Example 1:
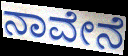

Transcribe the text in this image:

ನಾವೇನೆ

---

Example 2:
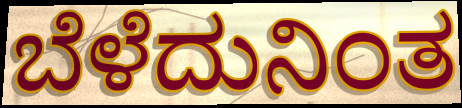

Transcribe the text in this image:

ಬೆಳೆದುನಿಂತ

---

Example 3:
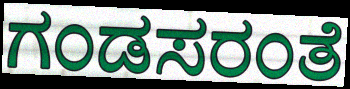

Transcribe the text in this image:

ಗಂಡಸರಂತೆ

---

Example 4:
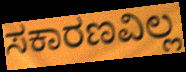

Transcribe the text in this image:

ಸಕಾರಣವಿಲ್ಲ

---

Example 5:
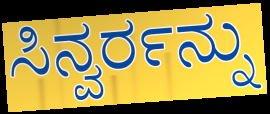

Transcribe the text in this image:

ಸಿನ್ವರ್ರನ್ನು